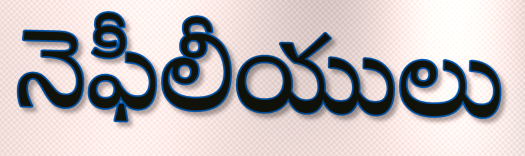
నెఫీలీయులు